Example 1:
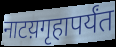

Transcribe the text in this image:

नाटय़गृहापर्यंत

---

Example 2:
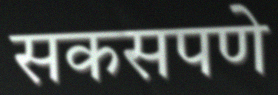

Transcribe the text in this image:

सकसपणे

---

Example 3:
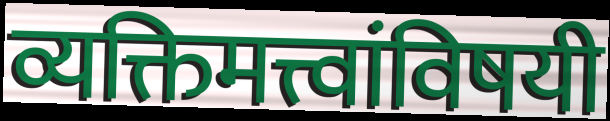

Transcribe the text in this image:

व्यक्तिमत्त्वांविषयी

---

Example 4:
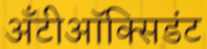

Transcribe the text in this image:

अँटीऑक्सिडंट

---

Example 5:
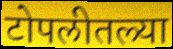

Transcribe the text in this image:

टोपलीतल्या